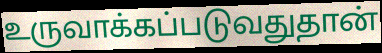
உருவாக்கப்படுவதுதான்